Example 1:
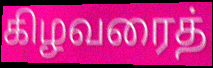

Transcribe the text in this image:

கிழவரைத்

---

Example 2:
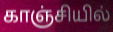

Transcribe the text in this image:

காஞ்சியில்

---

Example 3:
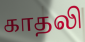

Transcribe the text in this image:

காதலி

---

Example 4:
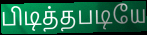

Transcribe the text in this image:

பிடித்தபடியே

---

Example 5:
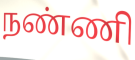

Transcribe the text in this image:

நண்ணி